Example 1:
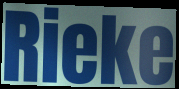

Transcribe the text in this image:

Rieke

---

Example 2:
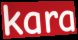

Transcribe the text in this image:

kara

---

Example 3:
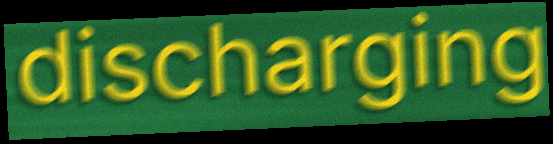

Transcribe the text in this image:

discharging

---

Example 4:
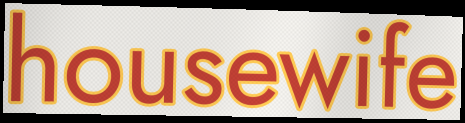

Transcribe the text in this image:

housewife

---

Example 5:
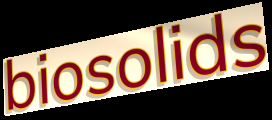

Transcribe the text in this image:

biosolids